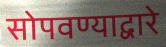
सोपवण्याद्वारे